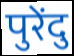
पुरेंदु